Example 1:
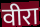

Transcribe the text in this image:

वीरा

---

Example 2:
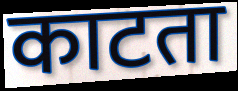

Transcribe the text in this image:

काटता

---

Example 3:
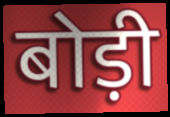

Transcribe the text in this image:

बोड़ी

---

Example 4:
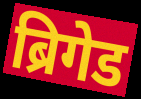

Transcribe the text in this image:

ब्रिगेड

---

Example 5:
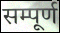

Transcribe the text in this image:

सम्पूर्ण